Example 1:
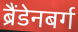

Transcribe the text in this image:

ब्रैंडेनबर्ग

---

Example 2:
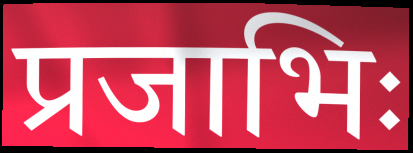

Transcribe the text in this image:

प्रजाभिः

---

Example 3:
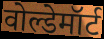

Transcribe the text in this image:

वोल्डेमॉर्ट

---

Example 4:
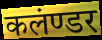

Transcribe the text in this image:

कलंण्डर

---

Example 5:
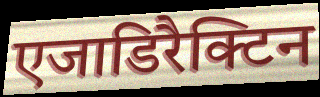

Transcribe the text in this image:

एजाडिरैक्टिन